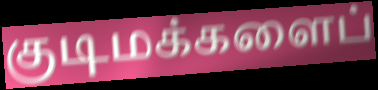
குடிமக்களைப்